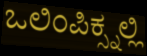
ಒಲಿಂಪಿಕ್ಸ್ನಲ್ಲಿ